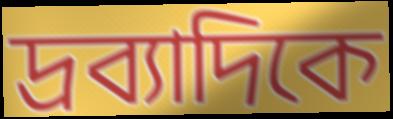
দ্রব্যাদিকে